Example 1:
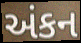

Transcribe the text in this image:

અંકન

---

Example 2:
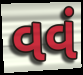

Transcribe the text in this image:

વવં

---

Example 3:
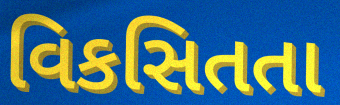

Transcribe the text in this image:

વિકસિતતા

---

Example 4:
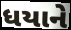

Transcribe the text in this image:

ધયાને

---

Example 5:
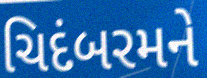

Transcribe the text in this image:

ચિદંબરમને